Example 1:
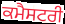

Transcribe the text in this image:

ਕਮੈਸਟਰੀ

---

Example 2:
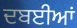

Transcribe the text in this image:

ਦਬਈਆਂ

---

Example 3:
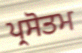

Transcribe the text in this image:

ਪ੍ਰਸੋਤਮ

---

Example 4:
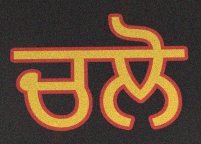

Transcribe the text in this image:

ਚਲੋ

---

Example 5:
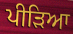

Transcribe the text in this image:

ਪੀੜਿਆ